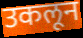
उकलून